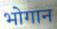
भोगान